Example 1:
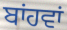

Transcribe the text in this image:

ਬਾਂਹਵਾਂ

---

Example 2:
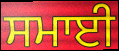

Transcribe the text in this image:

ਸਮਾਈ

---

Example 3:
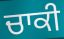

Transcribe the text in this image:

ਚਾਕੀ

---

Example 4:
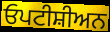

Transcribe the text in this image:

ਓਪਟੀਸ਼ੀਅਨ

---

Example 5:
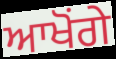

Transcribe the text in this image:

ਆਖੋਂਗੇ